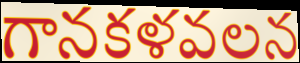
గానకళవలన